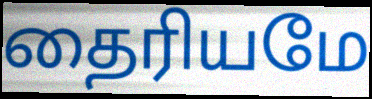
தைரியமே